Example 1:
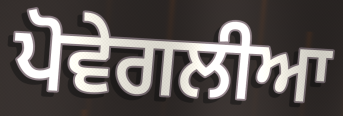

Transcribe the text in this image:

ਪੋਵੇਗਲੀਆ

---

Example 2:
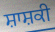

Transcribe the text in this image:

ਸ਼ਾਸ਼ਕੀ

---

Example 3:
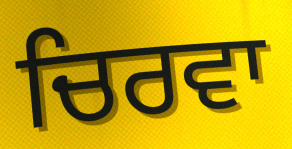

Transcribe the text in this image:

ਚਿਰਵਾ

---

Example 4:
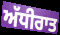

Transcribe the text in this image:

ਅੱਧੀਰਾਤ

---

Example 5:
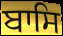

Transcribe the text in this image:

ਬਾਸਿ